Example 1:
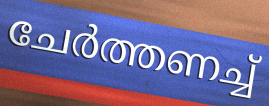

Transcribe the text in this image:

ചേർത്തണച്ച്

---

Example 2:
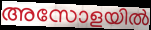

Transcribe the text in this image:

അസോളയിൽ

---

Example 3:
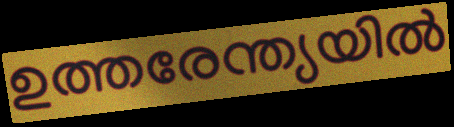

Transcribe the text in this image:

ഉത്തരേന്ത്യയിൽ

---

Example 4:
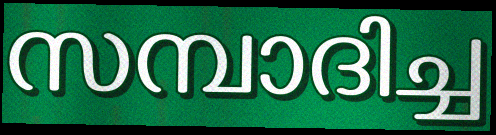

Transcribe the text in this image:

സമ്പാദിച്ച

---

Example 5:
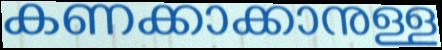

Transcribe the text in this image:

കണക്കാക്കാനുള്ള